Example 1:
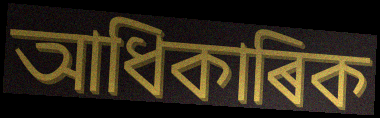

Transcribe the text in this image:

আধিকাৰিক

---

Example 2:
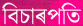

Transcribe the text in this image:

বিচাৰপতি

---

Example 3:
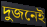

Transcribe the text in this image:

দুজনেই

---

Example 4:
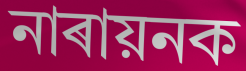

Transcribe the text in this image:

নাৰায়নক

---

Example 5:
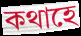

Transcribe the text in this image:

কথাহে